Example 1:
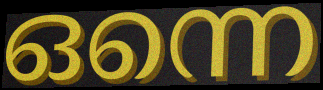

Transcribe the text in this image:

ഒന്നെ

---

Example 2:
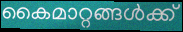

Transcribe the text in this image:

കൈമാറ്റങ്ങൾക്ക്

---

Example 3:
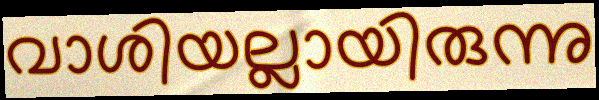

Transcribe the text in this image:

വാശിയല്ലായിരുന്നു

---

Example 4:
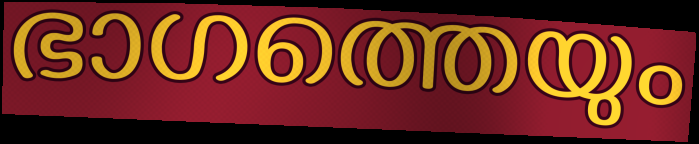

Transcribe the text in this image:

ഭാഗത്തെയും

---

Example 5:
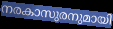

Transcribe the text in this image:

നരകാസുരനുമായി